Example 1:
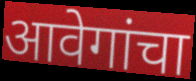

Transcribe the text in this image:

आवेगांचा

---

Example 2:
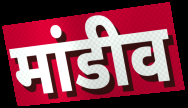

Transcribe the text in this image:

मांडीव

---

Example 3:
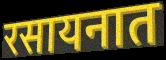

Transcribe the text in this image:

रसायनात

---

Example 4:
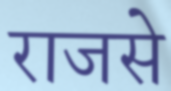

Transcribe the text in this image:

राजसे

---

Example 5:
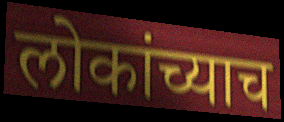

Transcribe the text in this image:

लोकांच्याच